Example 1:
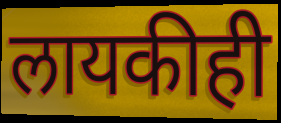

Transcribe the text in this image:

लायकीही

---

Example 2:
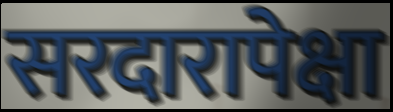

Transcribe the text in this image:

सरदारापेक्षा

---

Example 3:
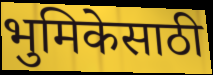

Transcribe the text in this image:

भुमिकेसाठी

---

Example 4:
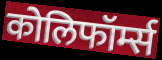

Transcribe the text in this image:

कोलिफॉर्म्स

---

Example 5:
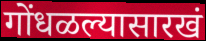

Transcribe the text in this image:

गोंधळल्यासारखं